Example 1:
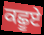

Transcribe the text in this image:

ਕਛੂਏ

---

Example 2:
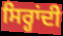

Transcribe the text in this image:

ਸਿਰ੍ਹਾਂਦੀ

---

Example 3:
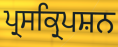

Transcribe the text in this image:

ਪ੍ਰਸਕ੍ਰਿਪਸ਼ਨ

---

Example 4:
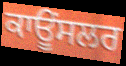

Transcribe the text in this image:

ਕਾਊਂਸਲਰ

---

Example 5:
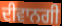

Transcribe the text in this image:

ਦੀਵਾਨਗੀ